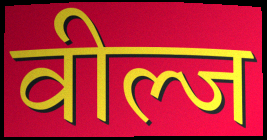
वील्ज